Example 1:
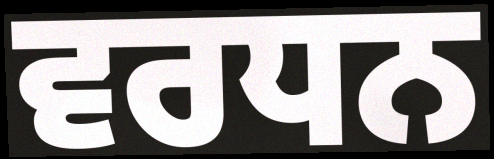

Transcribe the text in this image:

ਵਰਧਨ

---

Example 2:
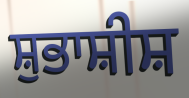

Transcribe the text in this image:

ਸ਼ੁਭਾਸ਼ੀਸ਼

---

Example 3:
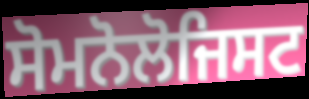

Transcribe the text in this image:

ਸੋਮਨੋਲੋਜਿਸਟ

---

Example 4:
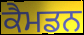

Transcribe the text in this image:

ਕੈਮਡਨ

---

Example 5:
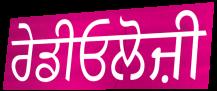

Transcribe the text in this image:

ਰੇਡੀਓਲੋਜ਼ੀ